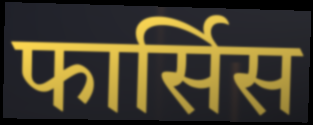
फार्सिस